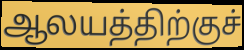
ஆலயத்திற்குச்